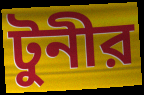
টুনীর